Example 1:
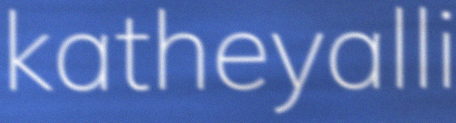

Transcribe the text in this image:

katheyalli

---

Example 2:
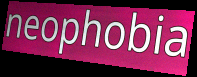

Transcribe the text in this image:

neophobia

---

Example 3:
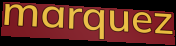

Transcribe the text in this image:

marquez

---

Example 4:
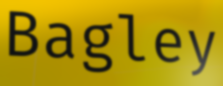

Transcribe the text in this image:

Bagley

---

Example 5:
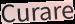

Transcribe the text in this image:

Curare